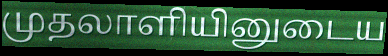
முதலாளியினுடைய